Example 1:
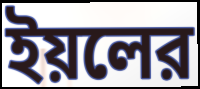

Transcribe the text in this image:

ইয়লের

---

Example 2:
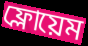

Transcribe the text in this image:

ফ্লোয়েম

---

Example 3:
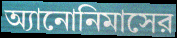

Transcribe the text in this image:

অ্যানোনিমাসের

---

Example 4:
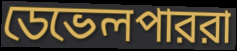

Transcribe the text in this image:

ডেভেলপাররা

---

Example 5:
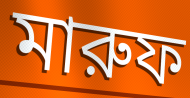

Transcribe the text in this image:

মারুফ